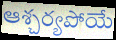
ఆశ్చర్యపోయే